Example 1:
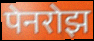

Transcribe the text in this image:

पेनरोझ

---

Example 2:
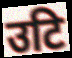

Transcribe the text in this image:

उटि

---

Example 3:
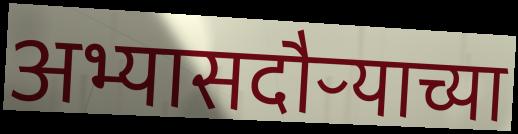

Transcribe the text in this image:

अभ्यासदौऱ्याच्या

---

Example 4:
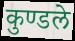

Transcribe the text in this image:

कुण्डले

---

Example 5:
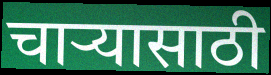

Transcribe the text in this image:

चार्‍यासाठी